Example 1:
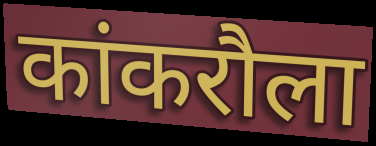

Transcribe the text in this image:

कांकरौला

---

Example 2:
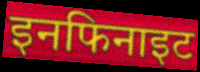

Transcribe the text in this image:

इनफिनाइट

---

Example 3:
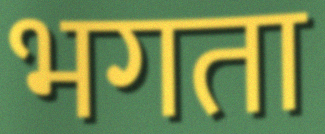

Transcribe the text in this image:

भगता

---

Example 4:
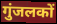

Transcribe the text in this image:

गुंजलकों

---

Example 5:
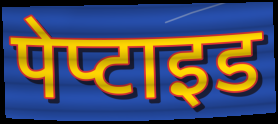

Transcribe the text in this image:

पेप्टाइड